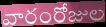
వారంరోజుల